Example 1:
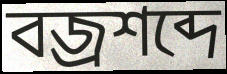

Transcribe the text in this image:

বজ্রশব্দে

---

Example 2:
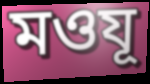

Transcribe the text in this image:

মওযূ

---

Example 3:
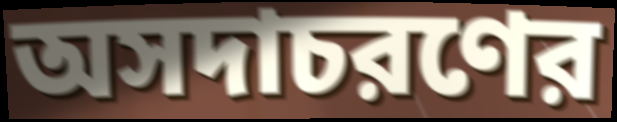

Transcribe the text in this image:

অসদাচরণের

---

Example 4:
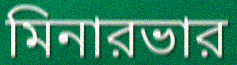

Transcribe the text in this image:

মিনারভার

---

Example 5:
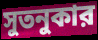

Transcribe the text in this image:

সুতনুকার